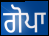
ਗੋਪਾ